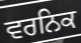
ਵਰਨਿਕ